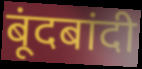
बूंदबांदी